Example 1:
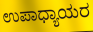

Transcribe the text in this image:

ಉಪಾಧ್ಯಾಯರ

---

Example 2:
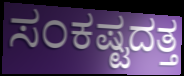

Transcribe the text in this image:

ಸಂಕಷ್ಟದತ್ತ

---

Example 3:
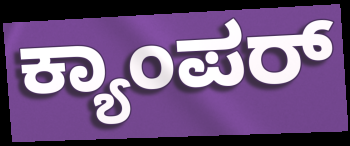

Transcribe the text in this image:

ಕ್ಯಾಂಪರ್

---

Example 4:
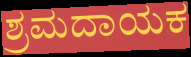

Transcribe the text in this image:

ಶ್ರಮದಾಯಕ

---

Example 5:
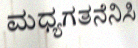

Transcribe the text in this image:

ಮಧ್ಯಗತನೆನಿಸಿ